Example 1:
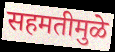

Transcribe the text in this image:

सहमतीमुळे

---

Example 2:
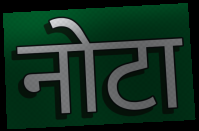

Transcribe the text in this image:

नोटा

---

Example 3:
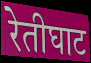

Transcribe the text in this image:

रेतीघाट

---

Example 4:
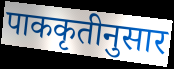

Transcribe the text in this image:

पाककृतीनुसार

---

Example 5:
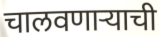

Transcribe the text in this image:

चालवणाऱ्याची